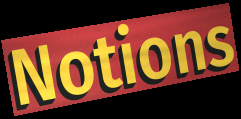
Notions